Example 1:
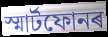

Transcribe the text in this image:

স্মাৰ্টফোনৰ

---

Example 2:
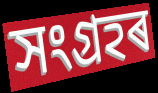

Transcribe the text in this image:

সংগ্ৰহৰ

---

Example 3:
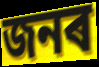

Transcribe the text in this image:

জনৰ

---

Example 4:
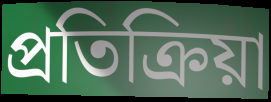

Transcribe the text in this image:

প্ৰতিক্ৰিয়া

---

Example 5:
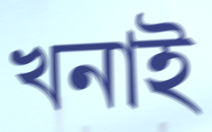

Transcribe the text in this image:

খনাই